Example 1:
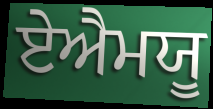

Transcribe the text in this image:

ਏਐਮਯੂ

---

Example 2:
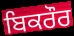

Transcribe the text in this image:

ਬਿਕਰੌਰ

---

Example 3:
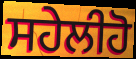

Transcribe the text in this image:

ਸਹੇਲੀਹੋ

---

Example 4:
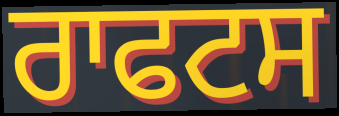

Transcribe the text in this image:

ਰਾਫਟਸ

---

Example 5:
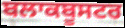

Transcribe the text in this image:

ਬਲਾਕਬੂਸਟਰ